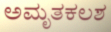
ಅಮೃತಕಲಶ